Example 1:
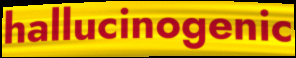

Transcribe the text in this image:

hallucinogenic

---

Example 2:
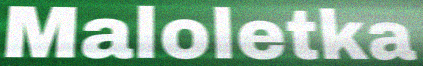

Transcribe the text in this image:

Maloletka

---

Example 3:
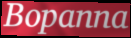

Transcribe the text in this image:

Bopanna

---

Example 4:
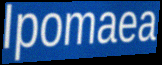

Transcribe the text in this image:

Ipomaea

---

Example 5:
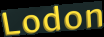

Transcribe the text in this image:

Lodon